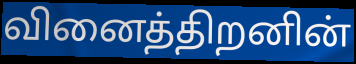
வினைத்திறனின்